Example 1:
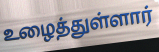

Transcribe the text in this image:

உழைத்துள்ளார்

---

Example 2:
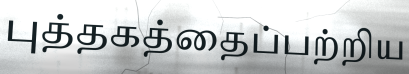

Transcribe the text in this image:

புத்தகத்தைப்பற்றிய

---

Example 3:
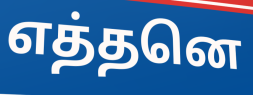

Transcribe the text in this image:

எத்தனெ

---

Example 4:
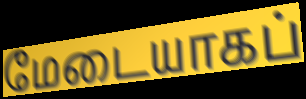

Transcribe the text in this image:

மேடையாகப்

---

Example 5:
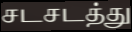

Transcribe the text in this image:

சடசடத்து